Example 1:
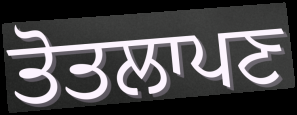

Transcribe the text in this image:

ਤੋਤਲਾਪਣ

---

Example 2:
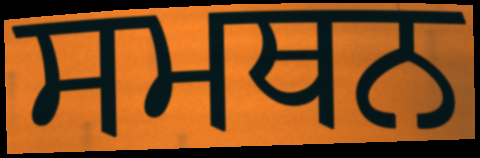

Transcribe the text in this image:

ਸਮਥਨ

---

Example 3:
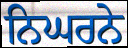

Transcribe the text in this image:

ਨਿਘਰਨੇ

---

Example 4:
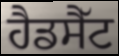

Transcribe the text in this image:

ਹੈਡਸੈੱਟ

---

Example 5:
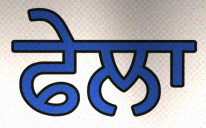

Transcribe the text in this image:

ਫੇਲਾ